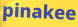
pinakee